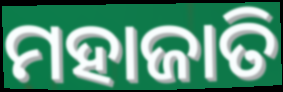
ମହାଜାତି